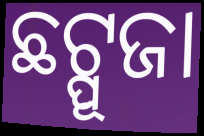
ଛଟ୍ପୂଜା